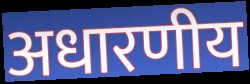
अधारणीय